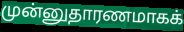
முன்னுதாரணமாகக்